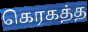
கெரகத்த